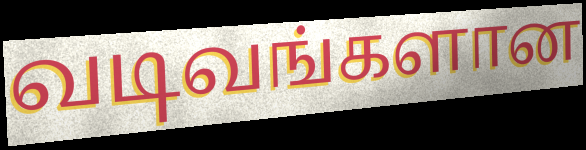
வடிவங்களான